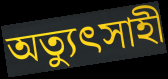
অত্যুৎসাহী